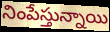
నింపేస్తున్నాయి